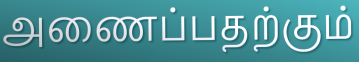
அணைப்பதற்கும்